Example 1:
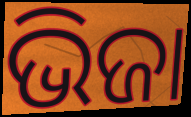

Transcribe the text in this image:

ଭିଜା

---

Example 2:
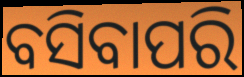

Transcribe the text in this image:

ବସିବାପରି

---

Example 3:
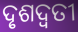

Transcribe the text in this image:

ଦୃଶଦ୍ୱତୀ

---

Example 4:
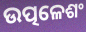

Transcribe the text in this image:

ଉତ୍ପଳେଶଂ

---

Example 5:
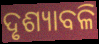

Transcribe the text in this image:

ଦୃଶ୍ୟାବଳି